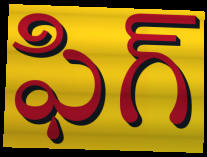
ఫిగ్